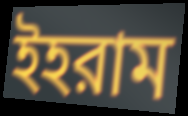
ইহরাম